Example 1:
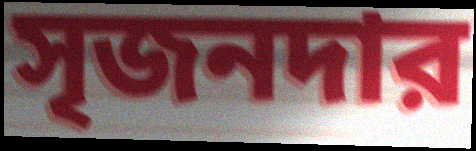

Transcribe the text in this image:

সৃজনদার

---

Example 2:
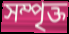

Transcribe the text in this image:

সম্পৃক্ত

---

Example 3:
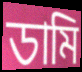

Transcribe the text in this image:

ডামি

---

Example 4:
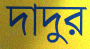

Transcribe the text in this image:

দাদুর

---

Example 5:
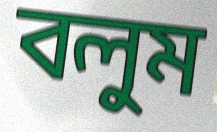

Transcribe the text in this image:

বলুম